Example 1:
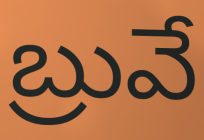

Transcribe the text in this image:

బ్రువే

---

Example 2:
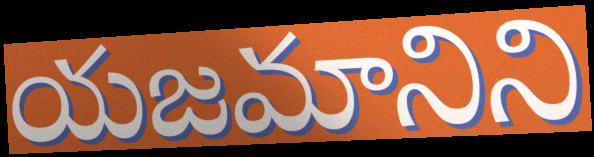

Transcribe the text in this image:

యజమానిని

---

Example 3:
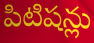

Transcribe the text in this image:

పిటిషన్లు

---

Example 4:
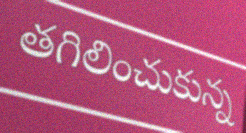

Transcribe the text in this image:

తగిలించుకున్న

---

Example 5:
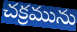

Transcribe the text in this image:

చక్రమును